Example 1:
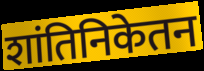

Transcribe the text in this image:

शांतिनिकेतन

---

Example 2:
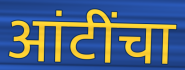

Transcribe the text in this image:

आंटींचा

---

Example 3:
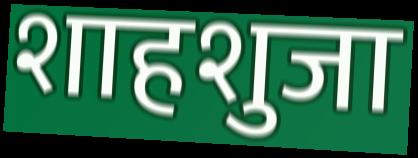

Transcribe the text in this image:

शाहशुजा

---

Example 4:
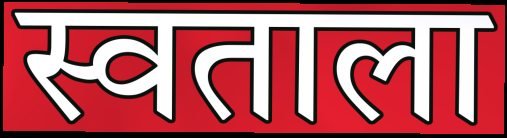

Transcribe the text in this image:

स्वताला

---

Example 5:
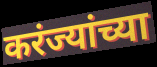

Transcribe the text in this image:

करंज्यांच्या